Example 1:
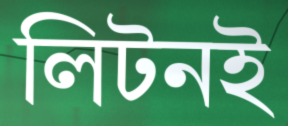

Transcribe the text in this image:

লিটনই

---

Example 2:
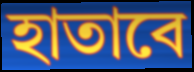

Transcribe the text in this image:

হাতাবে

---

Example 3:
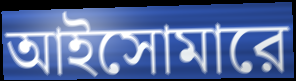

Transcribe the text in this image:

আইসোমারে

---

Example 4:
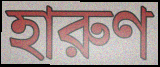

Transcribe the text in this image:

হারুণ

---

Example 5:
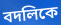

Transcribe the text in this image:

বদলিকে